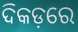
ଦିକଡ଼ରେ